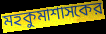
মহকুমাশাসকের